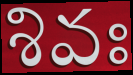
శివః